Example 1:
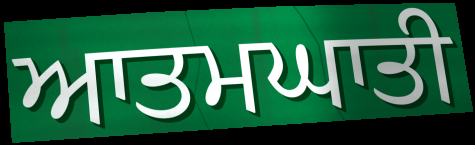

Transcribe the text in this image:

ਆਤਮਘਾਤੀ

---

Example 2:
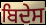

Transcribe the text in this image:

ਬਿਦੇਸ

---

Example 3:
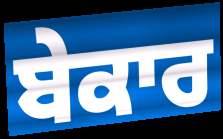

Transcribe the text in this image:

ਬੇਕਾਰ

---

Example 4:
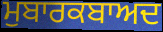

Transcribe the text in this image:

ਮੁਬਾਰਕਬਾਅਦ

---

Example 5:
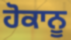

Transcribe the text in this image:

ਹੋਕਾਨੂ